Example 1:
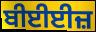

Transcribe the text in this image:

ਬੀਈਈਜ਼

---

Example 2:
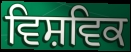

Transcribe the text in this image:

ਵਿਸ਼ਵਿਕ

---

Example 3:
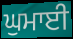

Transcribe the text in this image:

ਘੁਮਾਈ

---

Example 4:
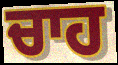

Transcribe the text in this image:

ਚਾਹ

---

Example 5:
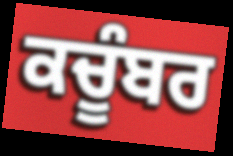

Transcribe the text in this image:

ਕਚੂੰਬਰ